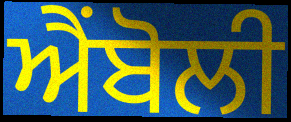
ਐਂਬੋਲੀ